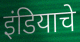
इंडियाचे